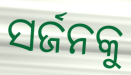
ସର୍ଜନକୁ